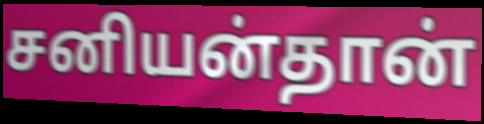
சனியன்தான்